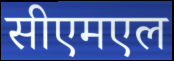
सीएमएल